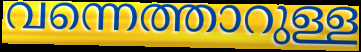
വന്നെത്താറുള്ള